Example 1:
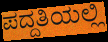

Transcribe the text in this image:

ಪದ್ದತಿಯಲ್ಲಿ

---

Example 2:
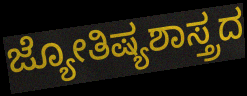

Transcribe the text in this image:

ಜ್ಯೋತಿಷ್ಯಶಾಸ್ತ್ರದ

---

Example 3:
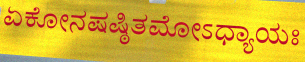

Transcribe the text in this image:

ಏಕೋನಷಷ್ಠಿತಮೋಽಧ್ಯಾಯಃ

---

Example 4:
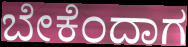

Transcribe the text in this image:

ಬೇಕೆಂದಾಗ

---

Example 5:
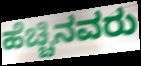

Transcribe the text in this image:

ಹೆಚ್ಚಿನವರು